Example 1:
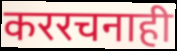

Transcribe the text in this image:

कररचनाही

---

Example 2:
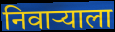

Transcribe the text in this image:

निवाऱ्याला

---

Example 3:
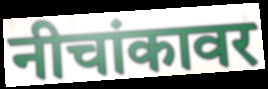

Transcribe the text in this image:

नीचांकावर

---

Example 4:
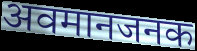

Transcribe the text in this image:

अवमानजनक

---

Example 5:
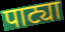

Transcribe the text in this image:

पाट्या